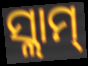
ସ୍ଲାମ୍